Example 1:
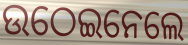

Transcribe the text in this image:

ଉଠେଇନେଲେ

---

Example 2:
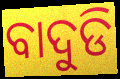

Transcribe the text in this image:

ବାଦୁଡି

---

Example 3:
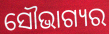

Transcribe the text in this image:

ସୌଭାଗ୍ୟର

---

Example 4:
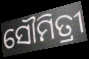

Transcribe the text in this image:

ସୌମିତ୍ରୀ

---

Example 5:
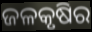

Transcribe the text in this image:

ଜଳକୃଷିର